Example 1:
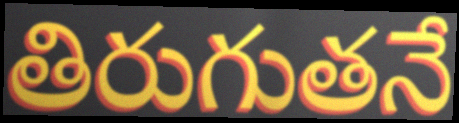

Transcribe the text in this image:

తిరుగుతనే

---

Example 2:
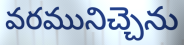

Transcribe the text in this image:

వరమునిచ్చెను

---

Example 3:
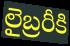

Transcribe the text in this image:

లైబ్రరీకి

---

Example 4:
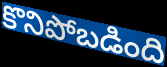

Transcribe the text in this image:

కొనిపోబడింది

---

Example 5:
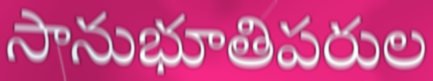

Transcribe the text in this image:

సానుభూతిపరుల